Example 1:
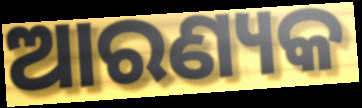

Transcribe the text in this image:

ଆରଣ୍ୟକ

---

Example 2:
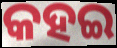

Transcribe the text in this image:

କହଇ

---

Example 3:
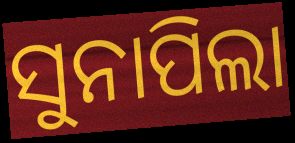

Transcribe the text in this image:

ସୁନାପିଲା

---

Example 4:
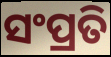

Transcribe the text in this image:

ସଂପ୍ରତି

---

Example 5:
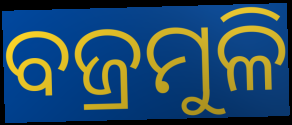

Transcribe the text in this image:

ବଜ୍ରମୁଳି